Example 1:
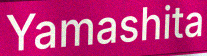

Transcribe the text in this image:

Yamashita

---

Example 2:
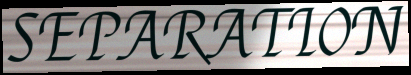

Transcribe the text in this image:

SEPARATION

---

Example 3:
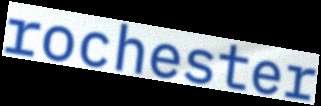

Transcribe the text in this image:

rochester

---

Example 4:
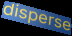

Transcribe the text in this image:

disperse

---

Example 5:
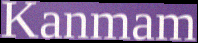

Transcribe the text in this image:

Kanmam